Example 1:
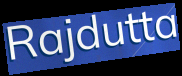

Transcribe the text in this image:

Rajdutta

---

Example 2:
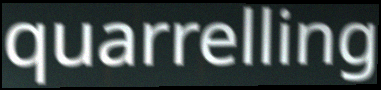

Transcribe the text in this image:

quarrelling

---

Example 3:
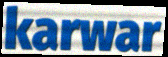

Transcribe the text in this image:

karwar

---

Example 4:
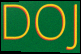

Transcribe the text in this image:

DOJ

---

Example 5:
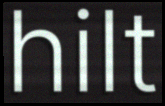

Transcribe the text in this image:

hilt